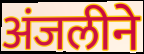
अंजलीने